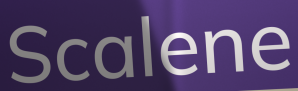
Scalene